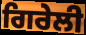
ਗਿਰੇਲੀ